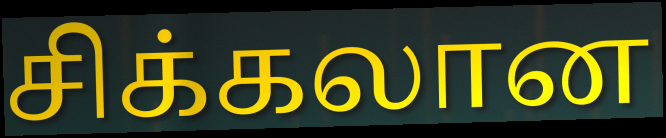
சிக்கலான